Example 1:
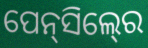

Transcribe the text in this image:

ପେନ୍‍ସିଲ୍‍ରେ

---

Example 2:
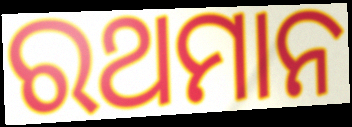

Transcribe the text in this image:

ରଥମାନ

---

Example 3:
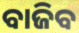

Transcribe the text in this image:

ବାଜିବ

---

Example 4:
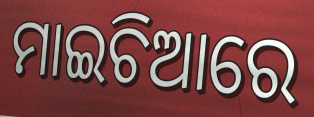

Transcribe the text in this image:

ମାଇଚିଆରେ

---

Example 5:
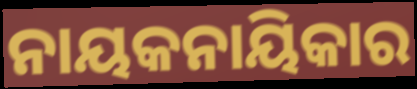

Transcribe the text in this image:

ନାୟକନାୟିକାର